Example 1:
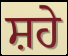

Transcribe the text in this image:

ਸ਼ਹੇ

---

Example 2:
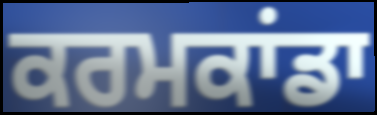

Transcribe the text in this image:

ਕਰਮਕਾਂਡਾ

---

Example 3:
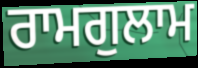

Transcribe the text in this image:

ਰਾਮਗੁਲਾਮ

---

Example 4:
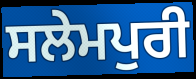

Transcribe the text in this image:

ਸਲੇਮਪੁਰੀ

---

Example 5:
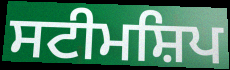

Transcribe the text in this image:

ਸਟੀਮਸ਼ਿਪ